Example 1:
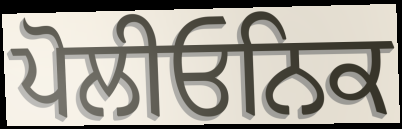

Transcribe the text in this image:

ਪੋਲੀਓਨਿਕ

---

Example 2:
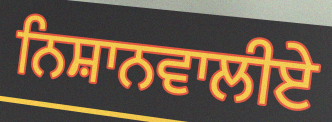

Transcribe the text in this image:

ਨਿਸ਼ਾਨਵਾਲੀਏ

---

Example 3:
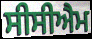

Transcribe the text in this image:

ਸੀਸੀਐਮ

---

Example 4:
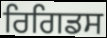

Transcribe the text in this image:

ਰਿਗਿਡਸ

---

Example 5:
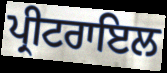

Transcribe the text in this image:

ਪ੍ਰੀਟਰਾਇਲ